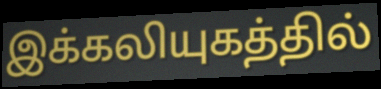
இக்கலியுகத்தில்